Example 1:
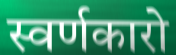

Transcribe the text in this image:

स्वर्णकारो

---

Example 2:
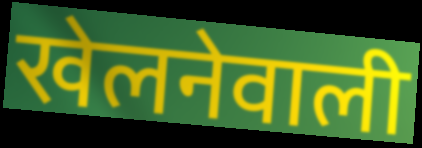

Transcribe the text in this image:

खेलनेवाली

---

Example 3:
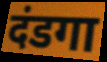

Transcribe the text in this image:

दंडगा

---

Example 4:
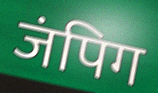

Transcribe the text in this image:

जंपिग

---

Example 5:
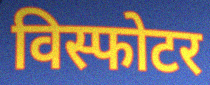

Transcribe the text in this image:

विस्फोटर